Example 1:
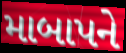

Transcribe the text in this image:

માબાપને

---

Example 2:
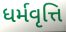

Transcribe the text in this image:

ધર્મવૃત્તિ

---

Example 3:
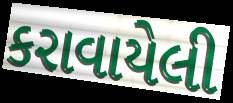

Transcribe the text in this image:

કરાવાયેલી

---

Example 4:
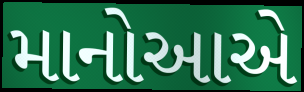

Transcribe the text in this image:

માનોઆએ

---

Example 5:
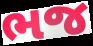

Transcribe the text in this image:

ભજ